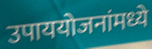
उपाययोजनांमध्ये